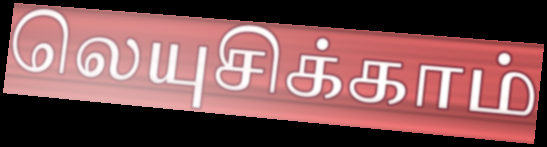
லெயுசிக்காம்